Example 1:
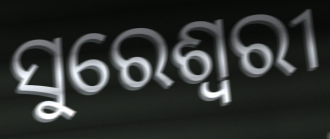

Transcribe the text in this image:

ସୁରେଶ୍ଵରୀ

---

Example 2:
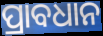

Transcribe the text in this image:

ପ୍ରାବଧାନ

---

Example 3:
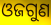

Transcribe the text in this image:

ଓଜଗୁଣ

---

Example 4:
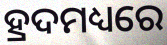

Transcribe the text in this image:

ହ୍ରଦମଧ୍ୟରେ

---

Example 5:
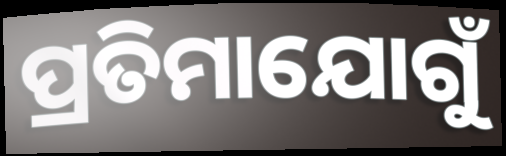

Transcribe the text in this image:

ପ୍ରତିମାଯୋଗୁଁ